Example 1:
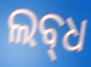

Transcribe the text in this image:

ଲବ୍‌ଧ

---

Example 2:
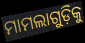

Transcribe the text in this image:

ମାମଲାଗୁଡ଼ିକୁ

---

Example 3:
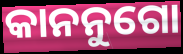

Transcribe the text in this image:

କାନନୁଗୋ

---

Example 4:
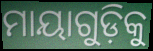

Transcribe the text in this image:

ମାୟାଗୁଡ଼ିକୁ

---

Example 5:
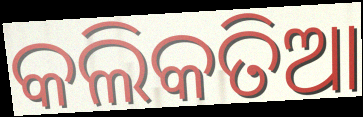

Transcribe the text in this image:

କଲିକତିଆ